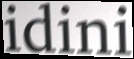
idini